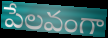
పేలవంగా